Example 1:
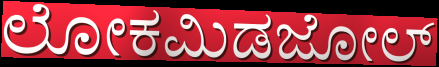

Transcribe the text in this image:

ಲೋಕಮಿಡಜೋಲ್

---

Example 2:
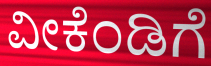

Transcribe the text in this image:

ವೀಕೆಂಡಿಗೆ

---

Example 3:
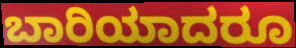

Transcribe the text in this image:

ಬಾರಿಯಾದರೂ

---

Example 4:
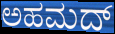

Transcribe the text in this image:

ಅಹಮದ್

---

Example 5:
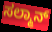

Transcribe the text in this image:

ಸಲ್ಮಾನ್